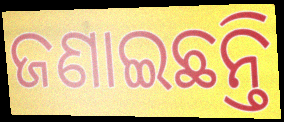
ଜଣାଇଛନ୍ତି